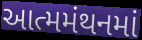
આત્મમંથનમાં